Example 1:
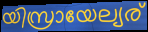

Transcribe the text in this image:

യിസ്രായേല്യര്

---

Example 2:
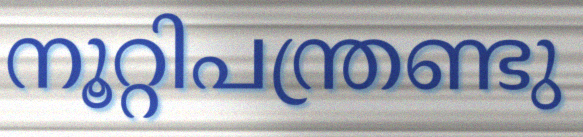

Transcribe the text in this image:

നൂറ്റിപന്ത്രണ്ടു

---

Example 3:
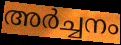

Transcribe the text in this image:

അർച്ചനം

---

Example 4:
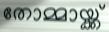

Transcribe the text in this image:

തോമ്മായ്ക്ക്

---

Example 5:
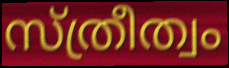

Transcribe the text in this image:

സ്ത്രീത്വം